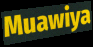
Muawiya